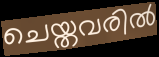
ചെയ്തവരിൽ